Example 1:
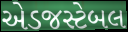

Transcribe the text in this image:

એડજસ્ટેબલ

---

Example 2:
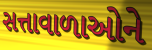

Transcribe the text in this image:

સત્તાવાળાઓને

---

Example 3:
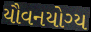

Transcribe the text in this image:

યૌવનયોગ્ય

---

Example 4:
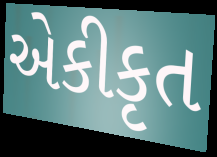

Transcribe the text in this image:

એકીકૃત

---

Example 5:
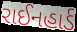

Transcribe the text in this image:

રાઈનહાર્ડ